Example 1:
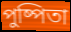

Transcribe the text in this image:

পুষ্পিতা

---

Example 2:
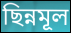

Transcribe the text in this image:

ছিন্নমূল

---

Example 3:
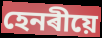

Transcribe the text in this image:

হেনৰীয়ে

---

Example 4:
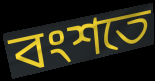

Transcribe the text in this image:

বংশতে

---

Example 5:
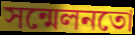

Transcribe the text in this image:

সন্মেলনতো